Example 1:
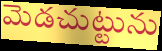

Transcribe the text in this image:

మెడచుట్టును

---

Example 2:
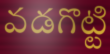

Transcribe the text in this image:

వడగొట్టి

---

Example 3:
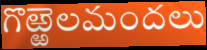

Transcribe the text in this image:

గొఱ్ఱెలమందలు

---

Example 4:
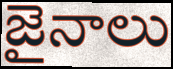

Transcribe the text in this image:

జైనాలు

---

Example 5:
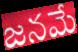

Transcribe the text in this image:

జనమే